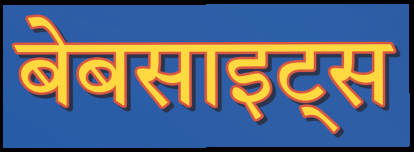
बेबसाइट्स